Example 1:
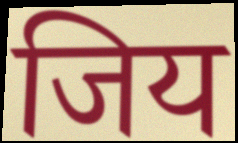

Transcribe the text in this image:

जिय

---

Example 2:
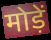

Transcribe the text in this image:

मोड़ें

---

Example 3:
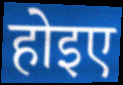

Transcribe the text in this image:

होइए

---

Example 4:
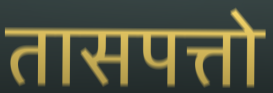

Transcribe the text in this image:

तासपत्तो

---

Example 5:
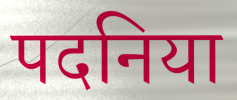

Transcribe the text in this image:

पदनिया